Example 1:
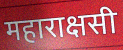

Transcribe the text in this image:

महाराक्षसी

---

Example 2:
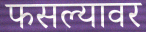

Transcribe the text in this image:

फसल्यावर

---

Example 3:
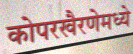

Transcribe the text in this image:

कोपरखैरणेमध्ये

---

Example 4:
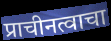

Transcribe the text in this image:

प्राचीनत्वाचा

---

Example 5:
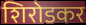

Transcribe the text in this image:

शिरोडकर